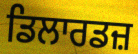
ਡਿਲਾਰਡਜ਼